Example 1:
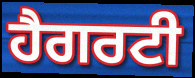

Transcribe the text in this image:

ਹੈਗਰਟੀ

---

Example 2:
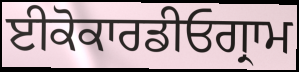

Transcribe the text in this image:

ਈਕੋਕਾਰਡੀਓਗ੍ਰਾਮ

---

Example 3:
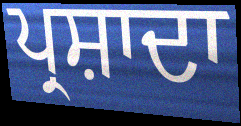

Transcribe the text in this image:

ਪ੍ਰਸ਼ਾਦਾ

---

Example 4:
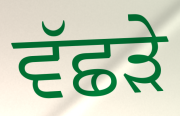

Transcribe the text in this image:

ਵੱਛੜੇ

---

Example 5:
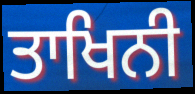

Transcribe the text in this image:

ਤਾਖਿਨੀ